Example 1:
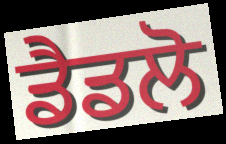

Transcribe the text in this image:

ਡੈਡਲੋ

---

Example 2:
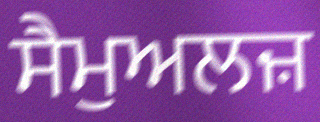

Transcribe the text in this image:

ਸੈਮੁਅਲਜ਼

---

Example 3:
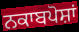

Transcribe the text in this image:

ਨਕਾਬਪੋਸ਼ਾਂ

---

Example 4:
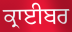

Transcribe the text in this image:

ਕ੍ਰਾਈਬਰ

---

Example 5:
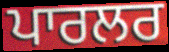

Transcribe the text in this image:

ਪਾਰਲਰ